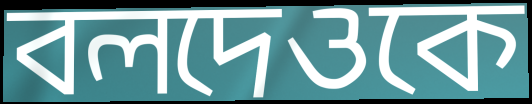
বলদেওকে